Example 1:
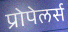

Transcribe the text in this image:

प्रोपेलर्स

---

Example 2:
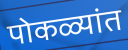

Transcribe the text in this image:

पोकळ्यांत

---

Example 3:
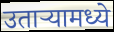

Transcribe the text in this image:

उताऱ्यामध्ये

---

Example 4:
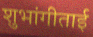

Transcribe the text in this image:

शुभांगीताई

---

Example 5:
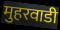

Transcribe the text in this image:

मुहरवाडी